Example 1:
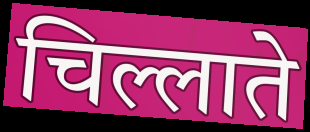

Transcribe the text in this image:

चिल्लाते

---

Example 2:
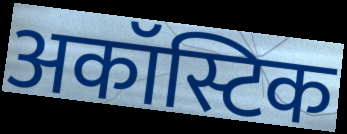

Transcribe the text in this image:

अकॉस्टिक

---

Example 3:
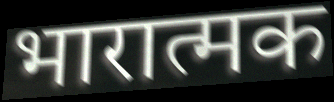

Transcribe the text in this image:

भारात्मक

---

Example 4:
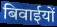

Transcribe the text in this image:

बिवाईयों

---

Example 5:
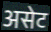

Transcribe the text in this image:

असेट